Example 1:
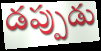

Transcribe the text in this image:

డప్పుడు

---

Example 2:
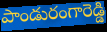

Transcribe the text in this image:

పాండురంగారెడ్డి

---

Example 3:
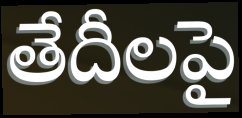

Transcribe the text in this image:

తేదీలపై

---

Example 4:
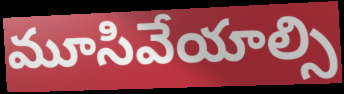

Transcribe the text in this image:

మూసివేయాల్సి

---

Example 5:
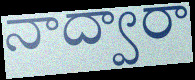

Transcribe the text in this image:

నాద్వారా